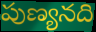
పుణ్యనది